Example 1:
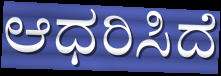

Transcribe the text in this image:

ಆಧರಿಸಿದೆ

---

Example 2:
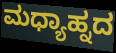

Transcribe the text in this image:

ಮಧ್ಯಾಹ್ನದ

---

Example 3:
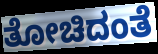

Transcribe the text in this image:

ತೋಚಿದಂತೆ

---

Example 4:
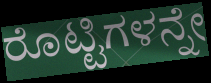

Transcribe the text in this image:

ರೊಟ್ಟಿಗಳನ್ನೇ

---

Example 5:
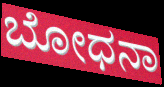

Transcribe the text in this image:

ಬೋಧನಾ